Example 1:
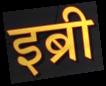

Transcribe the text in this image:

इब्री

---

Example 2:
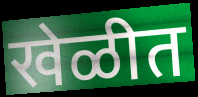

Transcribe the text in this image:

खेळीत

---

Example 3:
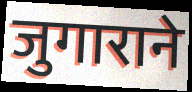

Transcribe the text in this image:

जुगाराने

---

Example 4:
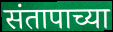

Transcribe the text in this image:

संतापाच्या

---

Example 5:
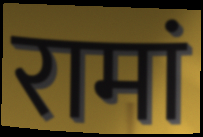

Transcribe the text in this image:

रामां